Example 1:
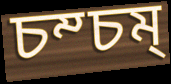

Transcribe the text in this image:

চম্চম্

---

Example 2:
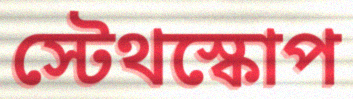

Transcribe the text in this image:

স্টেথস্কোপ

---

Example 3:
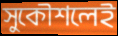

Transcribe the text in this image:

সুকৌশলেই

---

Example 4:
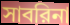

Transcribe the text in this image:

সাবরিনা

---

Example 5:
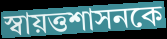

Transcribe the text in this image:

স্বায়ত্তশাসনকে